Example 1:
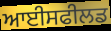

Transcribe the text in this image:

ਆਈਸਫੀਲਡ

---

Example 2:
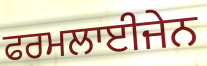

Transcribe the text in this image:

ਫਰਮਲਾਈਜੇਨ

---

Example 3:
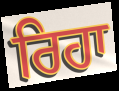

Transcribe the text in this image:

ਰਿਹਾ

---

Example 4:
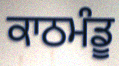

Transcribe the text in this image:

ਕਾਠਮੰਡੂ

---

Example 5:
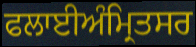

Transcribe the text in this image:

ਫਲਾਈਅੰਮ੍ਰਿਤਸਰ